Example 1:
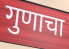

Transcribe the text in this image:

गुणाचा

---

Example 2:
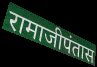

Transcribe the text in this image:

रामाजीपंतास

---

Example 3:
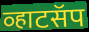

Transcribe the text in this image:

व्हाटसॅप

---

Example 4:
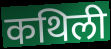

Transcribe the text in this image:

कथिली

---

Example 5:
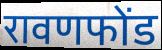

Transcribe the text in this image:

रावणफोंड